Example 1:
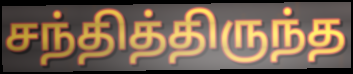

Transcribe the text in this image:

சந்தித்திருந்த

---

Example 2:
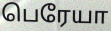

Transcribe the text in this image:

பெரேயா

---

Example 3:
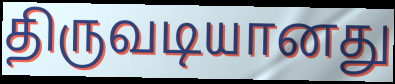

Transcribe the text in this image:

திருவடியானது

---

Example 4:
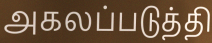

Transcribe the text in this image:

அகலப்படுத்தி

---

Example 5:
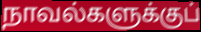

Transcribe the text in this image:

நாவல்களுக்குப்